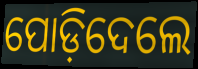
ପୋଡ଼ିଦେଲେ